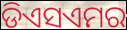
ଡିଏସଏମର